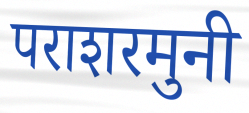
पराशरमुनी